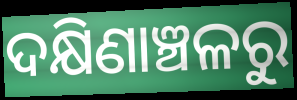
ଦକ୍ଷିଣାଞ୍ଚଳରୁ